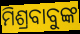
ମିଶ୍ରବାବୁଙ୍କ